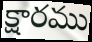
క్షారము